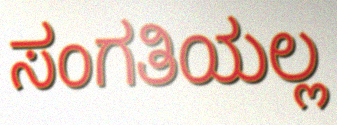
ಸಂಗತಿಯಲ್ಲ